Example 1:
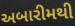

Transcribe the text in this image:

અબારીમથી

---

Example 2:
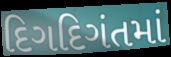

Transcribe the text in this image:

દિગદિગંતમાં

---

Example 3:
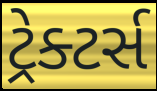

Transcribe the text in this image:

ટ્રેક્ટર્સ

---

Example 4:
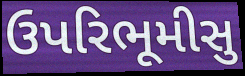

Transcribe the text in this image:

ઉપરિભૂમીસુ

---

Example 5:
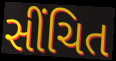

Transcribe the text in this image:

સીંચિત